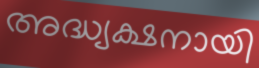
അദ്ധ്യക്ഷനായി